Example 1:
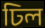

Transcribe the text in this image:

ঢিল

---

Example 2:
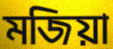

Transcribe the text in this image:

মজিয়া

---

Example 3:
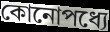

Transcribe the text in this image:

কোনোপধ্যে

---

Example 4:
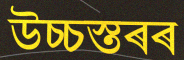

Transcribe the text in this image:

উচ্চস্তৰৰ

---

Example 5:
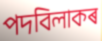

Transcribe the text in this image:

পদবিলাকৰ